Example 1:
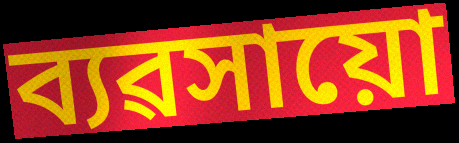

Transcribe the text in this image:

ব্যৱসায়ো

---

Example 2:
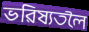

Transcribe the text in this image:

ভৱিষ্যতলৈ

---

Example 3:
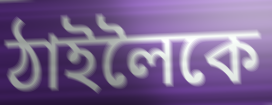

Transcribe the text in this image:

ঠাইলৈকে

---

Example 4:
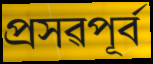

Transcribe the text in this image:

প্ৰসৱপূৰ্ব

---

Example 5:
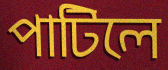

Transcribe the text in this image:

পাটিলে